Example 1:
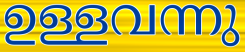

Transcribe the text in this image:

ഉള്ളവന്നു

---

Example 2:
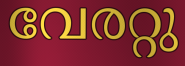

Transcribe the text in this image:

വേരറ്റു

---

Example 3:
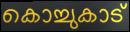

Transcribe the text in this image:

കൊച്ചുകാട്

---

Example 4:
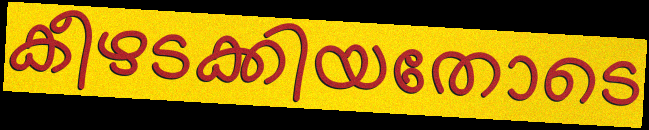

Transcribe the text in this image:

കീഴടക്കിയതോടെ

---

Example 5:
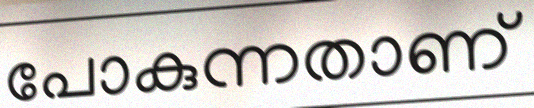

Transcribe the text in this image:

പോകുന്നതാണ്